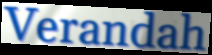
Verandah